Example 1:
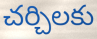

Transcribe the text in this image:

చర్చిలకు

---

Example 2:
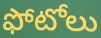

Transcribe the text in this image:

ఫోటోలు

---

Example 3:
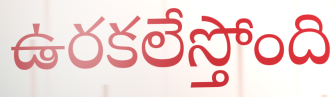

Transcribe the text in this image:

ఉరకలేస్తోంది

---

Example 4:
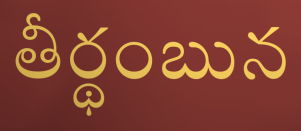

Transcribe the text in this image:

తీర్థంబున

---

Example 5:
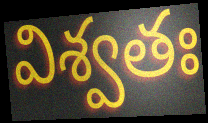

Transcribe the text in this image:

విశ్వతః